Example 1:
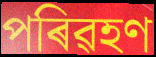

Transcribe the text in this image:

পৰিৱহণ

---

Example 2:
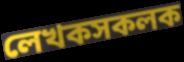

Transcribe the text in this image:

লেখকসকলক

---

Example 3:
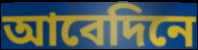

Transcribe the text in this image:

আবেদিনে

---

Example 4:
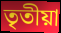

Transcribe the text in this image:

তৃতীয়া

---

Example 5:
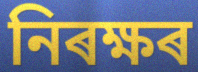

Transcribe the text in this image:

নিৰক্ষৰ